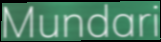
Mundari